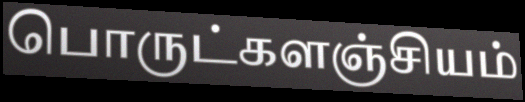
பொருட்களஞ்சியம்